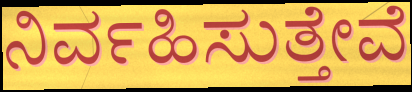
ನಿರ್ವಹಿಸುತ್ತೇವೆ